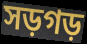
সড়গড়